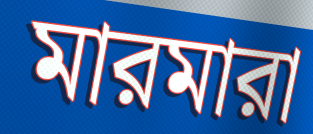
মারমারা